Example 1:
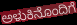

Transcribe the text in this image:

ಅಳುಕಿನೊಂದಿಗೆ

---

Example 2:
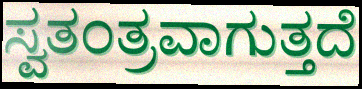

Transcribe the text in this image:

ಸ್ವತಂತ್ರವಾಗುತ್ತದೆ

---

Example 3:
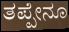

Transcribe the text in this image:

ತಪ್ಪೇನೂ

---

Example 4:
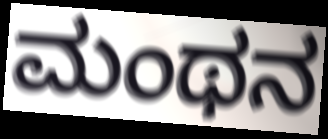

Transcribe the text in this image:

ಮಂಥನ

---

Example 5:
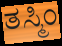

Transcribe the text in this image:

ತಸ್ಮಿಂ